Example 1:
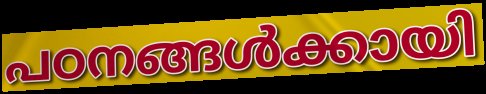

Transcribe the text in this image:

പഠനങ്ങൾക്കായി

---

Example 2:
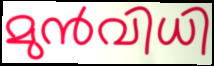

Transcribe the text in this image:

മുൻവിധി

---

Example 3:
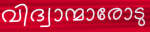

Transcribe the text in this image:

വിദ്വാന്മാരോടു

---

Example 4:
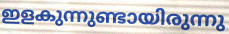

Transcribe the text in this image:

ഇളകുന്നുണ്ടായിരുന്നു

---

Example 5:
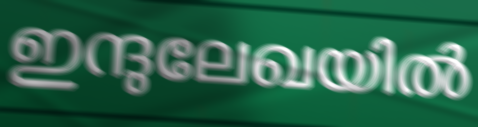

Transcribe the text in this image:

ഇന്ദുലേഖയിൽ